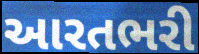
આરતભરી